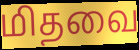
மிதவை